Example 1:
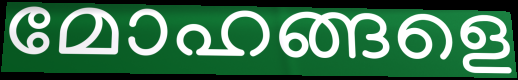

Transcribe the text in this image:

മോഹങ്ങളെ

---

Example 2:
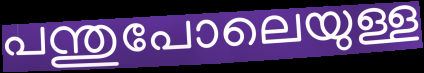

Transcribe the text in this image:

പന്തുപോലെയുള്ള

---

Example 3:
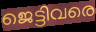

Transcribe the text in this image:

ജെട്ടിവരെ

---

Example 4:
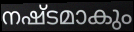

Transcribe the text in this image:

നഷ്ടമാകും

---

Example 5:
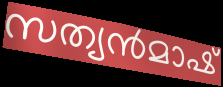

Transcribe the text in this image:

സത്യൻമാഷ്